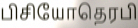
பிசியோதெரபி